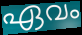
ഏവം